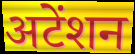
अटेंशन